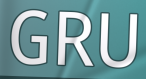
GRU